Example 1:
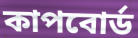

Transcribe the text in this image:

কাপবোর্ড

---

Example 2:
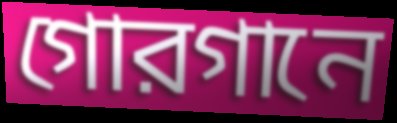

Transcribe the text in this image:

গোরগানে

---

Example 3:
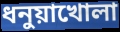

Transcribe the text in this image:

ধনুয়াখোলা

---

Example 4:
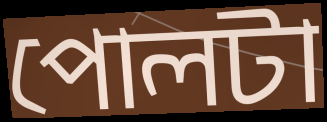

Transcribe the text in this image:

পোলটা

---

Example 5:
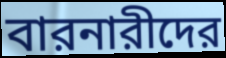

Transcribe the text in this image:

বারনারীদের